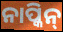
ନାପ୍କିନ୍